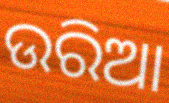
ଉରିଆ